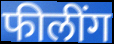
फीलींग